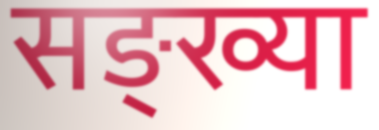
सङ्ख्या